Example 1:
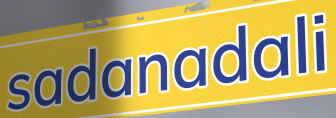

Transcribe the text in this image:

sadanadali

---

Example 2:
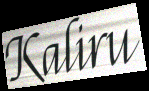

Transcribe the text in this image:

Kaliru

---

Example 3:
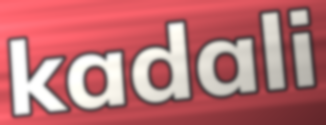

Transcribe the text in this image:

kadali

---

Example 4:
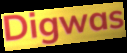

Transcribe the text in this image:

Digwas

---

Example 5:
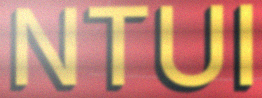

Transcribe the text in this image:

NTUI